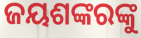
ଜୟଶଙ୍କରଙ୍କୁ